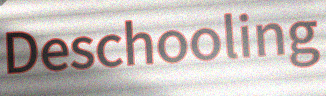
Deschooling